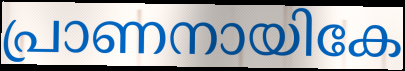
പ്രാണനായികേ